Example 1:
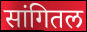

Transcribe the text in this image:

सांगितल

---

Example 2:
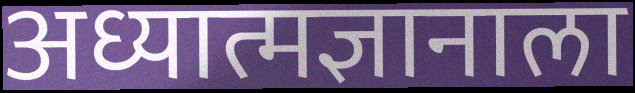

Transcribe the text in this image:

अध्यात्मज्ञानाला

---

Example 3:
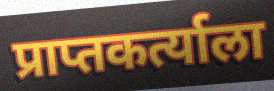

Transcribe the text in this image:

प्राप्तकर्त्याला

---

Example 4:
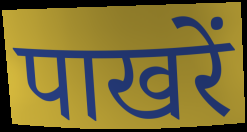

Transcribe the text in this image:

पाखरें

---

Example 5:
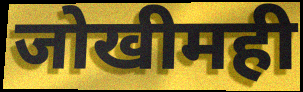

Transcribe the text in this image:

जोखीमही